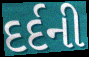
દર્દની